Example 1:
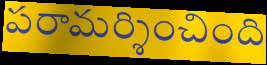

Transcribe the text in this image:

పరామర్శించింది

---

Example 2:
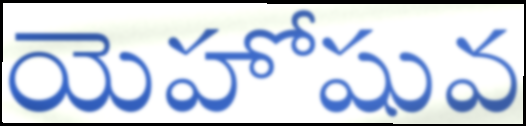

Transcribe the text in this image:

యెహోషువ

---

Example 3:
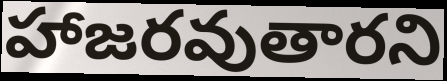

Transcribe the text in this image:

హాజరవుతారని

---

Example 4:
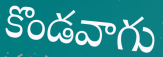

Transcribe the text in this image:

కొండవాగు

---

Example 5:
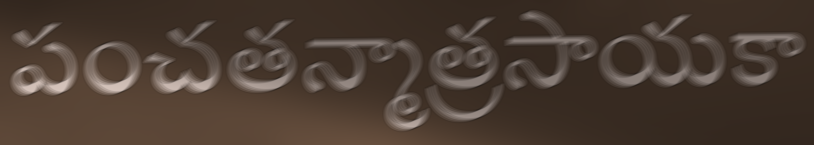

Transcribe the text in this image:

పంచతన్మాత్రసాయకా